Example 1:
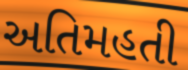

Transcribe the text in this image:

અતિમહતી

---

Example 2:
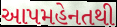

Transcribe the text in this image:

આપમહેનતથી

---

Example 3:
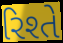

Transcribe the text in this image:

રિશ્તે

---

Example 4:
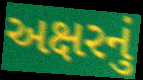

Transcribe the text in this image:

અક્ષરનું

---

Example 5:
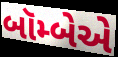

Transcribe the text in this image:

બૉમ્બેએ